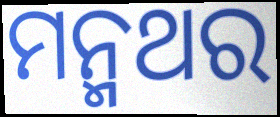
ମନ୍ମଥର